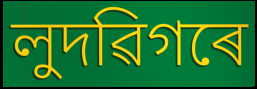
লুদৱিগৰে